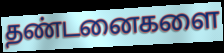
தண்டனைகளை